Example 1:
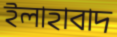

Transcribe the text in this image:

ইলাহাবাদ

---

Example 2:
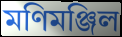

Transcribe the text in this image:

মণিমঞ্জিল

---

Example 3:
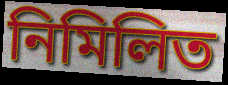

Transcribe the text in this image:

নিমিলিত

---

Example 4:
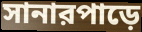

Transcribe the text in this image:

সানারপাড়ে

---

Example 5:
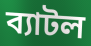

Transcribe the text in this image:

ব্যাটল